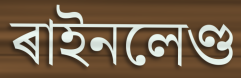
ৰাইনলেণ্ড